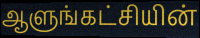
ஆளுங்கட்சியின்